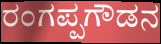
ರಂಗಪ್ಪಗೌಡನ